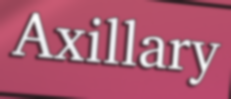
Axillary